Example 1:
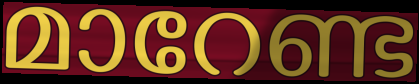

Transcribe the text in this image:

മാറേണ്ട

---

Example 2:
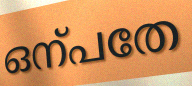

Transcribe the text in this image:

ഒന്പതേ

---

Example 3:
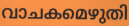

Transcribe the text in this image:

വാചകമെഴുതി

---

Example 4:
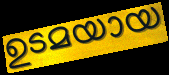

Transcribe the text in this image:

ഉടമയായ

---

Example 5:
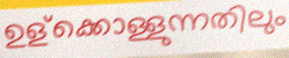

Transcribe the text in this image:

ഉള്ക്കൊള്ളുന്നതിലും